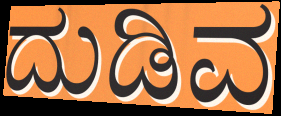
ದುಡಿವ